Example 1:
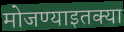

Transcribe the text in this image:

मोजण्याइतक्या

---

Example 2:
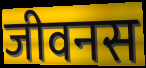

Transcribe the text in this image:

जीवनस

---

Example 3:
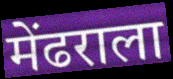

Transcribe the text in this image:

मेंढराला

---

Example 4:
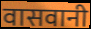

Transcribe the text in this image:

वासवानी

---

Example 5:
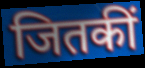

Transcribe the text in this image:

जितकीं